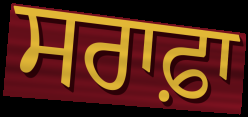
ਸਰਾਫ਼ਾ